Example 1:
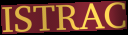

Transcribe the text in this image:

ISTRAC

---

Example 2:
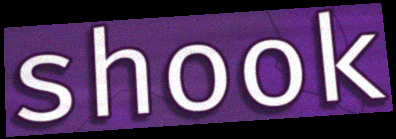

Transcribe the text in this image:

shook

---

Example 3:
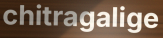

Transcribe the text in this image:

chitragalige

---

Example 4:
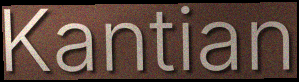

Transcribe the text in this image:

Kantian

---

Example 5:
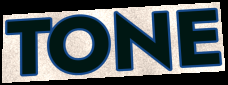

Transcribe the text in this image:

TONE